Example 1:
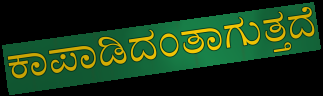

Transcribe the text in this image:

ಕಾಪಾಡಿದಂತಾಗುತ್ತದೆ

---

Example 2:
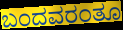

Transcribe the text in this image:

ಬಂದವರಂತೂ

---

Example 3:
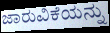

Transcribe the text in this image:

ಜಾರುವಿಕೆಯನ್ನು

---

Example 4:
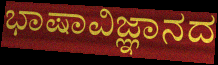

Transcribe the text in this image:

ಭಾಷಾವಿಜ್ಞಾನದ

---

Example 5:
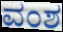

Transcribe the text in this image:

ವಂಶ